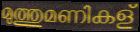
മുത്തുമണികള്